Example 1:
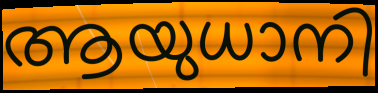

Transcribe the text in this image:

ആയുധാനി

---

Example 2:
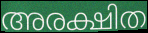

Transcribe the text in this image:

അരക്ഷിത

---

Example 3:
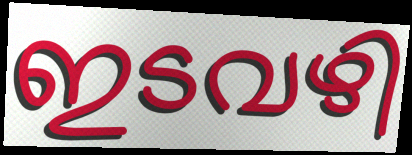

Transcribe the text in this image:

ഇടവഴി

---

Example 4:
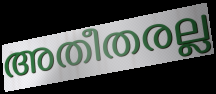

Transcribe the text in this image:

അതീതരല്ല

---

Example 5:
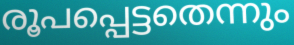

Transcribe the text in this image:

രൂപപ്പെട്ടതെന്നും